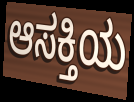
ಆಸಕ್ತಿಯ